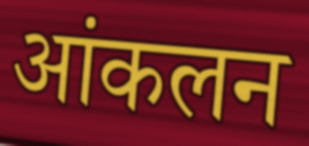
आंकलन